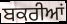
ਬਕਰੀਆਂ